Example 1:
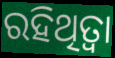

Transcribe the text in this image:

ରହିଥିତ୍ବା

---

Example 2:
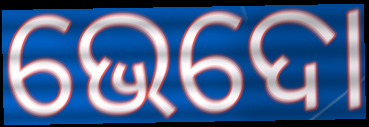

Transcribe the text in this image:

ଭେଦୋ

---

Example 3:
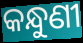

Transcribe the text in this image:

କନ୍ଧୁଣୀ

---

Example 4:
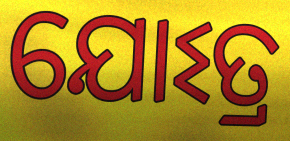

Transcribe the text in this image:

ଯୋଽତ୍ର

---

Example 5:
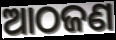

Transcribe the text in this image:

ଆଠଜଣ